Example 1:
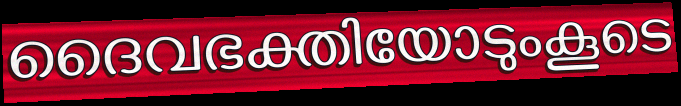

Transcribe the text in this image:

ദൈവഭക്തിയോടുംകൂടെ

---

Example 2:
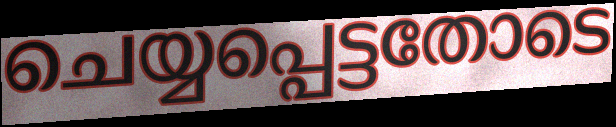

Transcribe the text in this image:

ചെയ്യപ്പെട്ടതോടെ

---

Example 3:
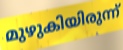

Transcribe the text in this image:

മുഴുകിയിരുന്ന്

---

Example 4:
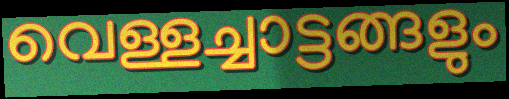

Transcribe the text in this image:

വെള്ളച്ചാട്ടങ്ങളും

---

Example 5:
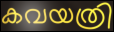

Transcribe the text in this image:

കവയത്രി